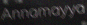
Annamayya